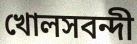
খোলসবন্দী